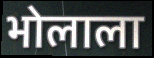
भोलाला